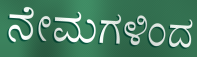
ನೇಮಗಳಿಂದ